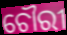
ଚୌରୀ